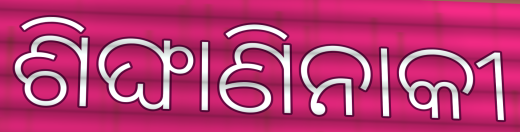
ଶିଙ୍ଘାଣିନାକୀ